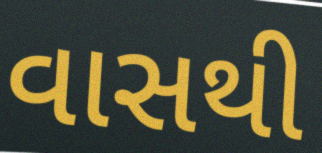
વાસથી